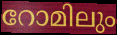
റോമിലും